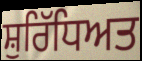
ਸ਼ੁਰਿੱਧਿਅਤ